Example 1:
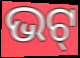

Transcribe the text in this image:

ଭଟ୍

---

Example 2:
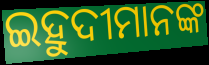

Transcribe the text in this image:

ଇହୁଦୀମାନଙ୍କ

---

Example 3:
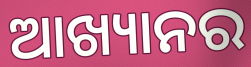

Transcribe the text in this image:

ଆଖ୍ୟାନର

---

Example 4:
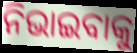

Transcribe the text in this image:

ନିଭାଇବାକୁ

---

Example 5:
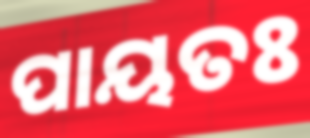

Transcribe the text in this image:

ପାୟତଃ